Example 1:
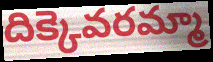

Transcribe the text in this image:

దిక్కెవరమ్మా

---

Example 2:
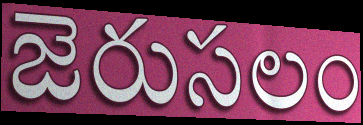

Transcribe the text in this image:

జెరుసలం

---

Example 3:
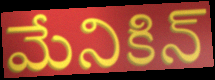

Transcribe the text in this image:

మేనికిన్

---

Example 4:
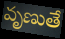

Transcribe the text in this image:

వృణుతే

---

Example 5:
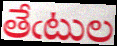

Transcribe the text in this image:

తేఁటుల